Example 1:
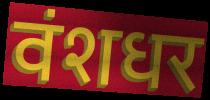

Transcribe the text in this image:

वंशधर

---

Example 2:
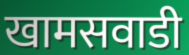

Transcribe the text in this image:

खामसवाडी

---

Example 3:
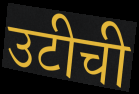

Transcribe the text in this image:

उटीची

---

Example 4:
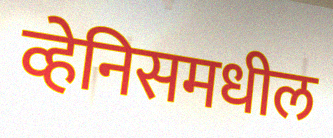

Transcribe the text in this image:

व्हेनिसमधील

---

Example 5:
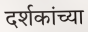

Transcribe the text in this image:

दर्शकांच्या